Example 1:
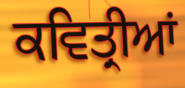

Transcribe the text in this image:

ਕਵਿਤ੍ਰੀਆਂ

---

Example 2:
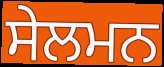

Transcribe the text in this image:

ਸੇਲਮਨ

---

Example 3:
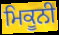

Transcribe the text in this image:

ਮਿਕੂਨੀ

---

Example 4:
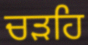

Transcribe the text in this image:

ਚੜਹਿ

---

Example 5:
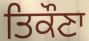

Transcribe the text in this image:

ਤਿਕੌਣਾ